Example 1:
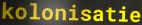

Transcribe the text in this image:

kolonisatie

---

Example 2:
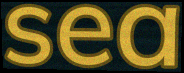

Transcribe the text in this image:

sea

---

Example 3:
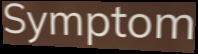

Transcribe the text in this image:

Symptom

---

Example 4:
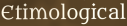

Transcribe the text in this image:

Etimological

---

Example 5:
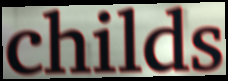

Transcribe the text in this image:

childs